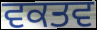
ਵਕਤਵ